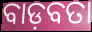
ବାଡ଼ବତା